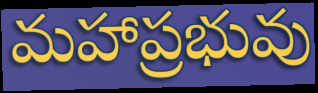
మహాప్రభువు